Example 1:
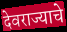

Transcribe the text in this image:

देवराज्याचे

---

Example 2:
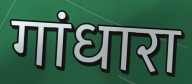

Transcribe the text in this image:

गांधारा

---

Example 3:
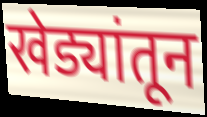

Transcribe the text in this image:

खेड्यांतून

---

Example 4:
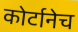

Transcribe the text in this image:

कोर्टानेच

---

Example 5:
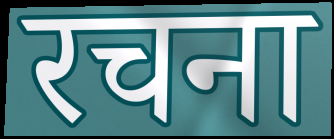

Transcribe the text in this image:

रचना